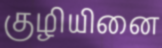
குழியினை